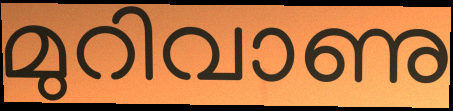
മുറിവാണു